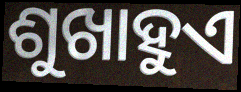
ଶୁଖାହୁଏ